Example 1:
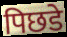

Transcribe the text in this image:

पिछडे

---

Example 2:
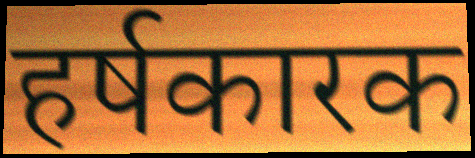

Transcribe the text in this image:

हर्षकारक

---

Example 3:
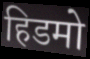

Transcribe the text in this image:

हिडमो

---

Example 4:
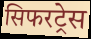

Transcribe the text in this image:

सिफरट्रेस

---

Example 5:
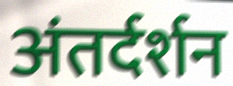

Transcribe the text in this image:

अंतर्दर्शन